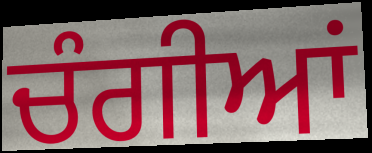
ਚੰਗੀਆਂ